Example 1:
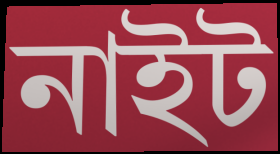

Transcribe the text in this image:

নাইট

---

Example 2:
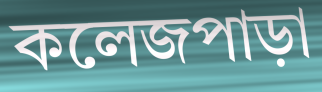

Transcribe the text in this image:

কলেজপাড়া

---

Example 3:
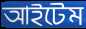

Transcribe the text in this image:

আইটেম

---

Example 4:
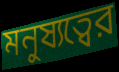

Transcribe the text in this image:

মনুষ্যত্বের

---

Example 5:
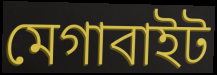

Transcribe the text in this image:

মেগাবাইট